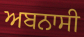
ਅਬਨਾਸੀ